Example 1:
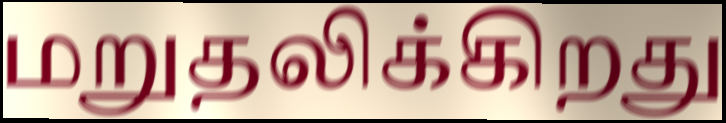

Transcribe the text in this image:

மறுதலிக்கிறது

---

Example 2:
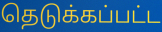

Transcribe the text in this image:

தெடுக்கப்பட்ட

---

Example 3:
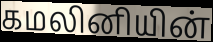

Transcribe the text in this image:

கமலினியின்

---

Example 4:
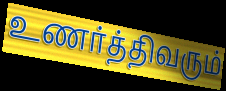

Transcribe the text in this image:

உணர்த்திவரும்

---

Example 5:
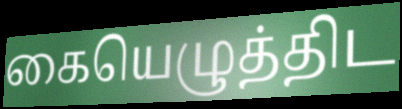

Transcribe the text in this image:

கையெழுத்திட